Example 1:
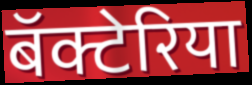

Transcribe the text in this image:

बॅक्टेरिया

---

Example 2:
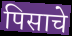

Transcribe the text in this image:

पिसाचे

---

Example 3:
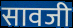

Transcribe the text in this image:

सावजी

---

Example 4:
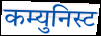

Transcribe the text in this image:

कम्युनिस्ट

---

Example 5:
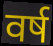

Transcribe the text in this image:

वर्ष